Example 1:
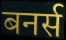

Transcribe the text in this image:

बनर्स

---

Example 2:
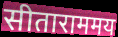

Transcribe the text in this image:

सीताराममय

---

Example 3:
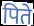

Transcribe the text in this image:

पिते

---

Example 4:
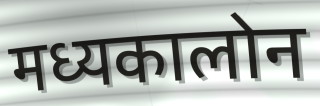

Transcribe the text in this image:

मध्यकालोन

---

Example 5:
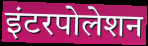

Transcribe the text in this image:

इंटरपोलेशन